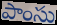
పాంసు